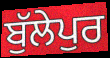
ਬੁੱਲੇਪੁਰ